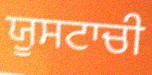
ਯੂਸਟਾਚੀ